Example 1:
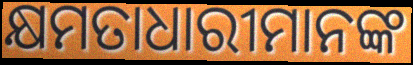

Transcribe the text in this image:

କ୍ଷମତାଧାରୀମାନଙ୍କ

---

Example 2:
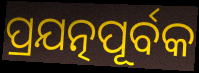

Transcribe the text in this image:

ପ୍ରଯତ୍ନପୂର୍ବକ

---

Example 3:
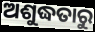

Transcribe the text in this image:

ଅଶୁଦ୍ଧତାରୁ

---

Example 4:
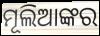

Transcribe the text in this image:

ମୂଲିଆଙ୍କର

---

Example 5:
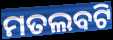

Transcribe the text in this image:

ମତଲବଟି